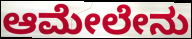
ಆಮೇಲೇನು